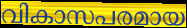
വികാസപരമായ